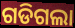
ଗଡିଗଲା